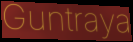
Guntraya